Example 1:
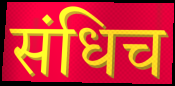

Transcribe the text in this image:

संधिच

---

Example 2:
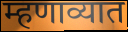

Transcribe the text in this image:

म्हणाव्यात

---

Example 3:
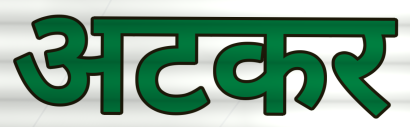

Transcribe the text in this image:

अटकर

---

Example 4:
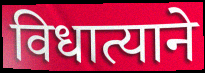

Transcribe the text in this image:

विधात्याने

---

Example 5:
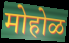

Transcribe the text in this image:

मोहोळ